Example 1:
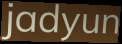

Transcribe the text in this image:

jadyun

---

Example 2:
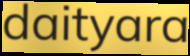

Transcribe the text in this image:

daityara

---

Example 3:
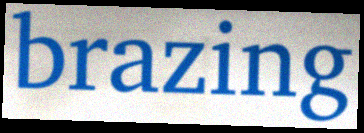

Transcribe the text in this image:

brazing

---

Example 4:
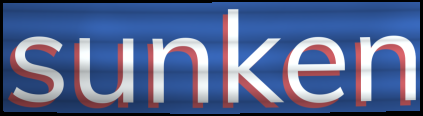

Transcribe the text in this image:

sunken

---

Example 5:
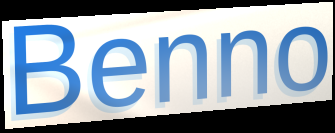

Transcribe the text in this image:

Benno